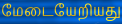
மேடையேறியது